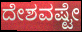
ದೇಶವಷ್ಟೇ